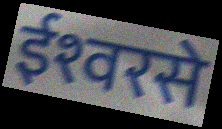
ईश्वरसे